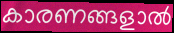
കാരണങ്ങളാൽ